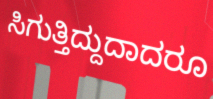
ಸಿಗುತ್ತಿದ್ದುದಾದರೂ